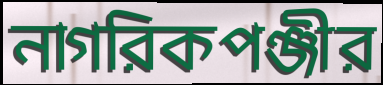
নাগরিকপঞ্জীর